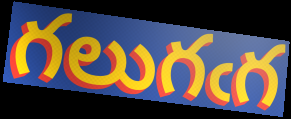
గలుగఁగ